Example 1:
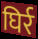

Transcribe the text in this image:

घिर्र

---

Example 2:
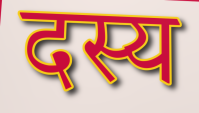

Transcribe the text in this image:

दस्य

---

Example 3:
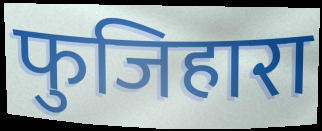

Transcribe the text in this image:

फुजिहारा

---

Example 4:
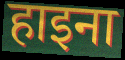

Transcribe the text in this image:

हाइना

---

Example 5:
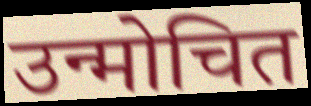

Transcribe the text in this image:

उन्मोचित